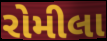
રોમીલા